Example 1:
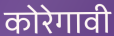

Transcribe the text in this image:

कोरेगावी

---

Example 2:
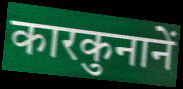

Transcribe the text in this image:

कारकुनानें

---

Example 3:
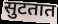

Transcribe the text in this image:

सुटतात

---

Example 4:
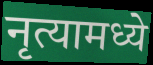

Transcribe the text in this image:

नृत्यामध्ये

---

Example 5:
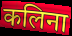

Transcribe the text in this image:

कलिना